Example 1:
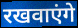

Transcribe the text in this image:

रखवाएंगे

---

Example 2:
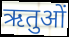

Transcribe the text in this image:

ऋतुओं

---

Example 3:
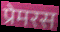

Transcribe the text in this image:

प्रेमरस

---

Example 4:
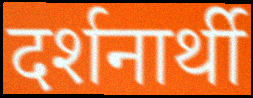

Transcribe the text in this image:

दर्शनार्थी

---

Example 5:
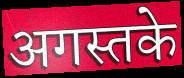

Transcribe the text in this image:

अगस्तके